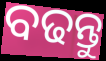
ବଢନ୍ତୁ